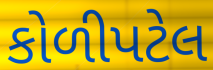
કોળીપટેલ